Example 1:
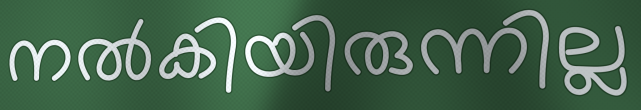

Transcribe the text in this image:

നൽകിയിരുന്നില്ല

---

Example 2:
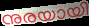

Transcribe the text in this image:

നുരയായി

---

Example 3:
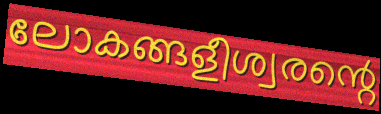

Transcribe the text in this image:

ലോകങ്ങളീശ്വരന്റെ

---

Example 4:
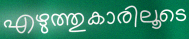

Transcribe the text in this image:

എഴുത്തുകാരിലൂടെ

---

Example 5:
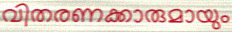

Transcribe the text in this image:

വിതരണക്കാരുമായും